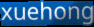
xuehong